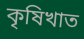
কৃষিখাত